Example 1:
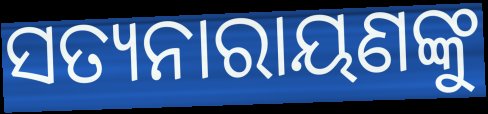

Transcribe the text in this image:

ସତ୍ୟନାରାୟଣଙ୍କୁ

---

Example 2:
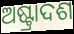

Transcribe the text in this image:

ଅଷ୍ଟ୍ରାଦଶ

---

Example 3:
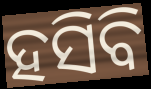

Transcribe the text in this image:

ହସିବି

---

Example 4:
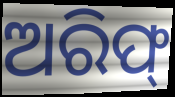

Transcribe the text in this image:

ଅରିଫ୍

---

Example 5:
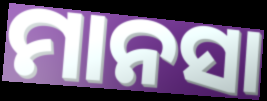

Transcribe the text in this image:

ମାନସା